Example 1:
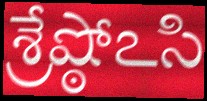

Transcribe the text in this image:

శ్రేష్ఠోఽసి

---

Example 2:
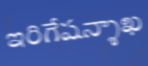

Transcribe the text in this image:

ఇరిగేషన్శాఖ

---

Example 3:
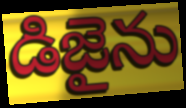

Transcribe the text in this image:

డిజైను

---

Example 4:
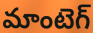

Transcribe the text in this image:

మాంటెగ్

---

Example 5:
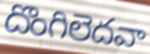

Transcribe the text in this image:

దొంగిలెదవా